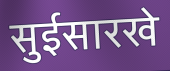
सुईसारखे